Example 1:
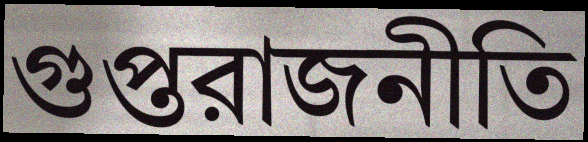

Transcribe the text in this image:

গুপ্তরাজনীতি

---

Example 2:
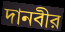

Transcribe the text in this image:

দানবীর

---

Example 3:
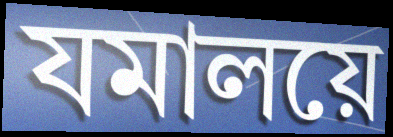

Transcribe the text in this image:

যমালয়ে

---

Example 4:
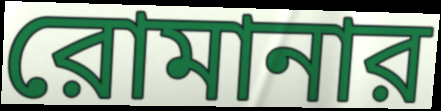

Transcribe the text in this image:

রোমানার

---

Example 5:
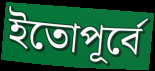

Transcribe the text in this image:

ইতোপূর্বে